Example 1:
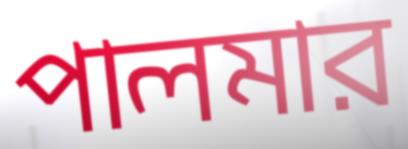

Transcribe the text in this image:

পালমার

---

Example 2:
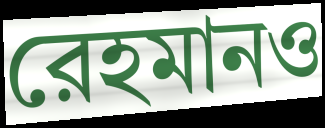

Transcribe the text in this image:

রেহমানও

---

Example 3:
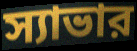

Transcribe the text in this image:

স্যাভার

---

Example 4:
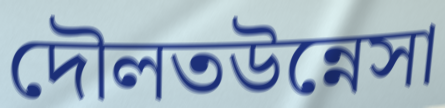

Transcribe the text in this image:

দৌলতউন্নেসা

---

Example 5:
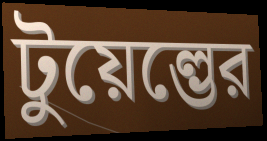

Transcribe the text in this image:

টুয়েল্ভের